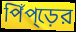
পিঁপ্‌ড়ের